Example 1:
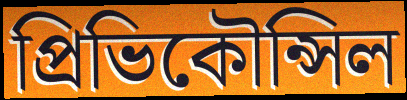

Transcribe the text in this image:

প্রিভিকৌন্সিল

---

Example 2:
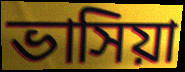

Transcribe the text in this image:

ভাসিয়া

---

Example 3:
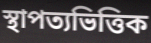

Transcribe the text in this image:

স্থাপত্যভিত্তিক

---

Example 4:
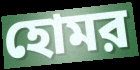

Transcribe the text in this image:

হোমর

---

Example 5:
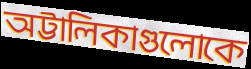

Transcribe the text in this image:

অট্টালিকাগুলোকে